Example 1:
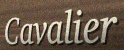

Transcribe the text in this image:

Cavalier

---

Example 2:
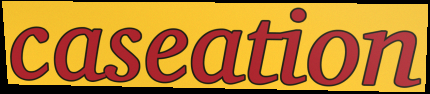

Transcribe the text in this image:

caseation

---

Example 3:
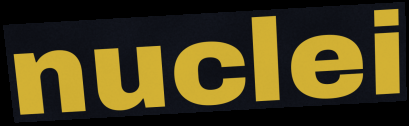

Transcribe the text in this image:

nuclei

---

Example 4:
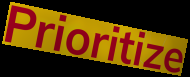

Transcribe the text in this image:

Prioritize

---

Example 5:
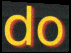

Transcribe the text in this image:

do